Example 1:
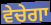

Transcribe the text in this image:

ਵੇਚੇਗਾ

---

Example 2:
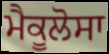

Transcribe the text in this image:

ਮੈਕੂਲੋਸਾ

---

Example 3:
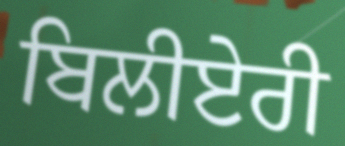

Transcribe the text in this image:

ਬਿਲੀਏਰੀ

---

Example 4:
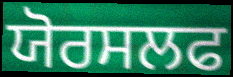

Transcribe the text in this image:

ਯੋਰਸਲਫ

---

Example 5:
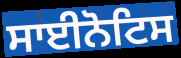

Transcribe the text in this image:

ਸਾਈਨੋਟਿਸ